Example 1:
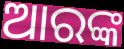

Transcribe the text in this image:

ଆରଙ୍କ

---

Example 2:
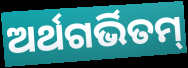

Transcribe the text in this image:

ଅର୍ଥଗର୍ଭିତମ୍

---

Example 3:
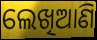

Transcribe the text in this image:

ଲେଖିଆଣି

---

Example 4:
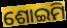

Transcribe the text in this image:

ଶୋଇମି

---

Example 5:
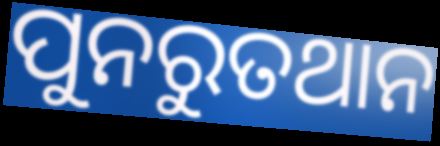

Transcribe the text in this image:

ପୁନରୁତଥାନ